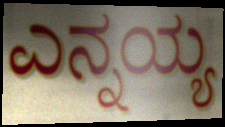
ಎನ್ನಯ್ಯ